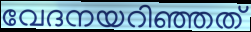
വേദനയറിഞ്ഞത്